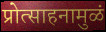
प्रोत्साहनामुळं